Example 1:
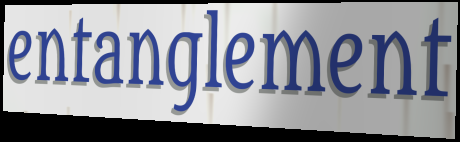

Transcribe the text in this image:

entanglement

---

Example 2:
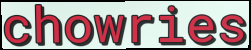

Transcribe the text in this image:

chowries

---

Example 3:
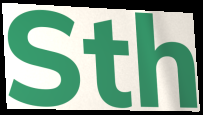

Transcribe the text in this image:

Sth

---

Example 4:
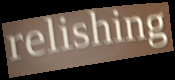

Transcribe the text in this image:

relishing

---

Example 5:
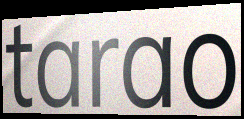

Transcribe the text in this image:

tarao